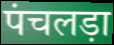
पंचलड़ा